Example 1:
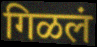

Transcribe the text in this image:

गिळलं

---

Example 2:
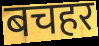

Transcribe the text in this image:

बचहर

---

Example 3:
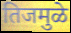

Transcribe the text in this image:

तिजमुळे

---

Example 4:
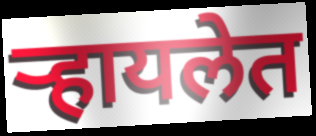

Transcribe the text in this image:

ऱ्हायलेत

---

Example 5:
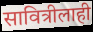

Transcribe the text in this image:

सावित्रीलाही